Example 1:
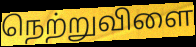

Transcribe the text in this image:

நெற்றுவிளை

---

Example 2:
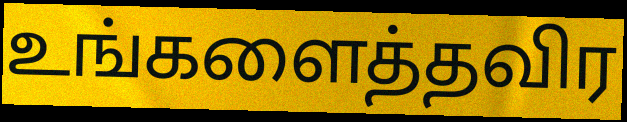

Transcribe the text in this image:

உங்களைத்தவிர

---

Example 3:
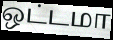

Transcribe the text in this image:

ஒட்டமா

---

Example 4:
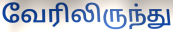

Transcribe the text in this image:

வேரிலிருந்து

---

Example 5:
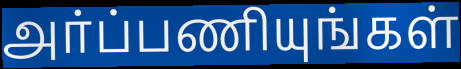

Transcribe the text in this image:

அர்ப்பணியுங்கள்